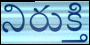
నిరుక్తి